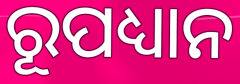
ରୂପଧ୍ୟାନ